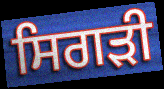
ਸਿਗੜੀ